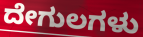
ದೇಗುಲಗಳು